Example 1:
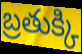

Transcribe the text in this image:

బ్రతుక్కి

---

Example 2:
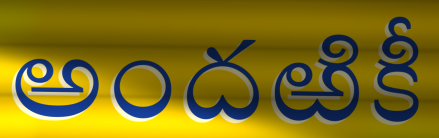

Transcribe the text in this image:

అందఱికీ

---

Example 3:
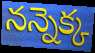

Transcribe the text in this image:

నన్నెక్క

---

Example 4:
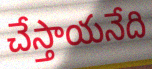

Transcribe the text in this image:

చేస్తాయనేది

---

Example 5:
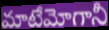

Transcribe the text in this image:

మాటేమోగానీ